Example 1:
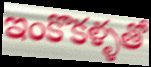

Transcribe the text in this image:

ఇంకొకళ్ళతో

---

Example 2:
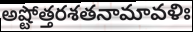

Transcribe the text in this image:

అష్టోత్తరశతనామావళిః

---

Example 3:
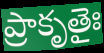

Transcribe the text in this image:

ప్రాకృతైః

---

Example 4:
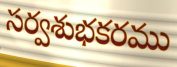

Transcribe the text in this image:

సర్వశుభకరము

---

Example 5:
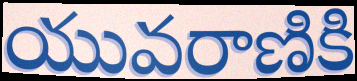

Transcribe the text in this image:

యువరాణికి